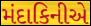
મંદાકિનીએ